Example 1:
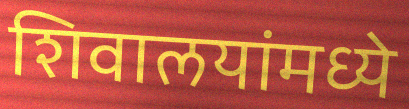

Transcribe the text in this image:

शिवालयांमध्ये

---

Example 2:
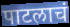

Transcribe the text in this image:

पाटलाचं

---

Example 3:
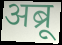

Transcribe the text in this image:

अब्रू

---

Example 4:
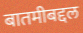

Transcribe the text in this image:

बातमीबद्दल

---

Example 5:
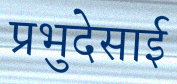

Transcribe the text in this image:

प्रभुदेसाई